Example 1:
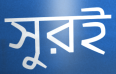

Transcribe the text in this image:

সুরই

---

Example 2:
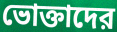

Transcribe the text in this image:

ভোক্তাদের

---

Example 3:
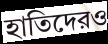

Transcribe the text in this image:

হাতিদেরও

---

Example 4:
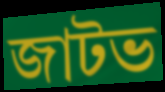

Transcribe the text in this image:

জাটভ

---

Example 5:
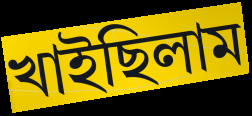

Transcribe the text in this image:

খাইছিলাম